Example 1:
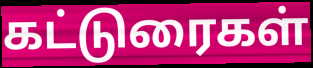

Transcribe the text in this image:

கட்டுரைகள்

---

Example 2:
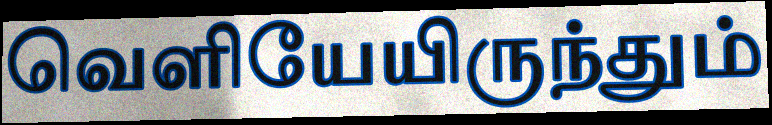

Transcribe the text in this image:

வெளியேயிருந்தும்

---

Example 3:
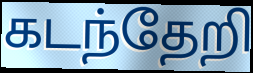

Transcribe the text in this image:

கடந்தேறி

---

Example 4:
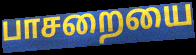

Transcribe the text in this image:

பாசறையை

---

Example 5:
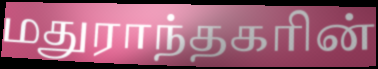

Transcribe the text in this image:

மதுராந்தகரின்